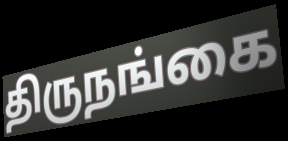
திருநங்கை